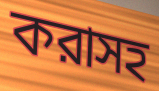
করাসহ